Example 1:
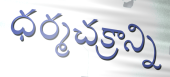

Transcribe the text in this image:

ధర్మచక్రాన్ని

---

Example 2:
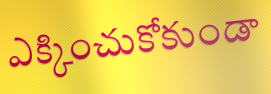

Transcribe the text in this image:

ఎక్కించుకోకుండా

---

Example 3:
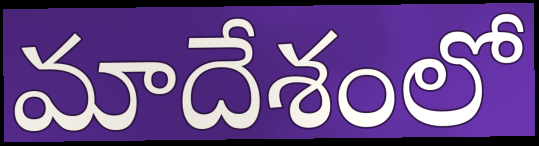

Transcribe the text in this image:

మాదేశంలో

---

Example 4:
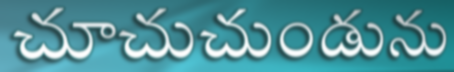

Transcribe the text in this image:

చూచుచుండును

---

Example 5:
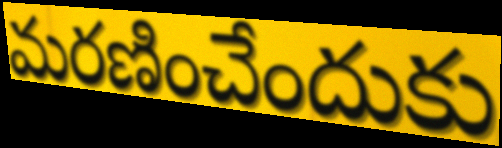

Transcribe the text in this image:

మరణించేందుకు